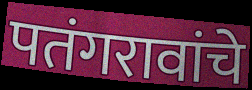
पतंगरावांचे